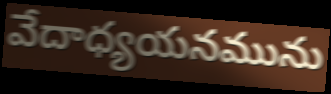
వేదాధ్యయనమును